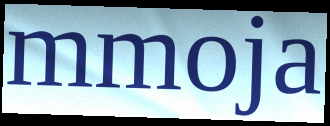
mmoja